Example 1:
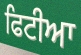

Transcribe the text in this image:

ਫਿਟੀਆ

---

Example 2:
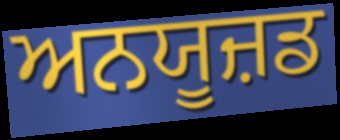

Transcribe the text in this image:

ਅਨਯੂਜ਼ਡ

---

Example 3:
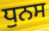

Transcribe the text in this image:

ਧੁਨਸ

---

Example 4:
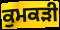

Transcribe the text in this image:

ਕੁਮਕੜੀ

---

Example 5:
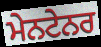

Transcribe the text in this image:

ਮੇਨਟੇਨਰ